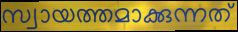
സ്വായത്തമാക്കുന്നത്